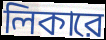
লিকারে